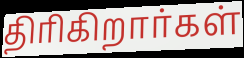
திரிகிறார்கள்